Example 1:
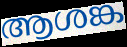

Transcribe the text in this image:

ആശങ്ക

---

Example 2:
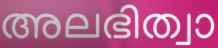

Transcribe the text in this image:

അലഭിത്വാ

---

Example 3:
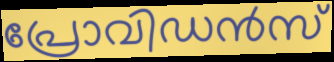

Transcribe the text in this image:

പ്രോവിഡൻസ്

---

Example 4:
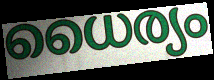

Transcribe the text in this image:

ധൈര്യം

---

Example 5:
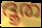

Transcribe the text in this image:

ദൂത